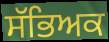
ਸੱਭਿਅਕ